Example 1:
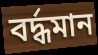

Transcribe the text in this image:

বর্দ্ধমান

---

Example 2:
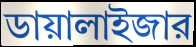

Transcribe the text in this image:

ডায়ালাইজার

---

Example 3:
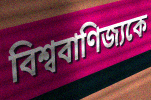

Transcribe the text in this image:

বিশ্ববাণিজ্যকে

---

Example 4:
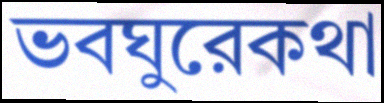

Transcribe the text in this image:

ভবঘুরেকথা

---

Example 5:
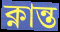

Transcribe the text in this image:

ক্নান্ত